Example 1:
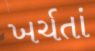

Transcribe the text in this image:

ખર્ચતાં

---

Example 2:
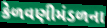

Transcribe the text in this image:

કેળવણીમંડળના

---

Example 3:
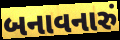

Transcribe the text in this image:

બનાવનારું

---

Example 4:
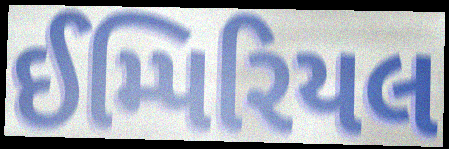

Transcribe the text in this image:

ઈમ્પિરિયલ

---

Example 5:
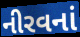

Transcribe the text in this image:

નીરવનાં